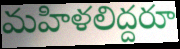
మహిళలిద్దరూ